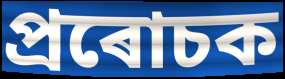
প্ৰৰোচক